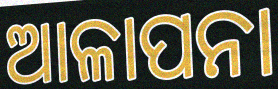
ଆଳାପନା